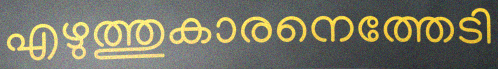
എഴുത്തുകാരനെത്തേടി